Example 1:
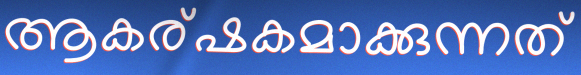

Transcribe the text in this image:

ആകര്ഷകമാക്കുന്നത്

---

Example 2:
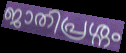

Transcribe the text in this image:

ജാതിപ്രശ്നം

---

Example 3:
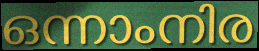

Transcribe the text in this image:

ഒന്നാംനിര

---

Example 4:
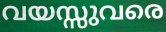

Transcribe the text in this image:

വയസ്സുവരെ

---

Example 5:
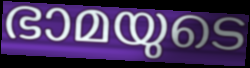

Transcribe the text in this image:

ഭാമയുടെ